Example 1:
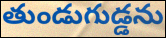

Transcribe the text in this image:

తుండుగుడ్డను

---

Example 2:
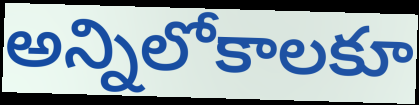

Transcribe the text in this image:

అన్నిలోకాలకూ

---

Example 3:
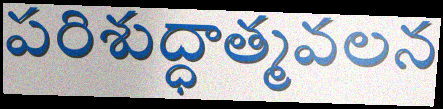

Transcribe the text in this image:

పరిశుద్ధాత్మవలన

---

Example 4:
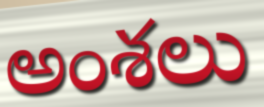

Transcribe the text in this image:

అంశలు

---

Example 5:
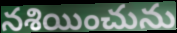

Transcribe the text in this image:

నశియించును